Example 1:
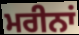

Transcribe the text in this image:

ਮਰੀਨਾਂ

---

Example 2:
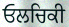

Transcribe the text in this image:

ਓਲਚਿਕੀ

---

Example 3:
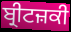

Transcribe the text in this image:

ਬ੍ਰੀਟਜ਼ਕੀ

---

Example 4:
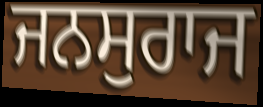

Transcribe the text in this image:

ਜਨਸੁਰਾਜ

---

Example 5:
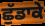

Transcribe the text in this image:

ਛੁੱਡਾਕੇ